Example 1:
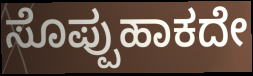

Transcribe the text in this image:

ಸೊಪ್ಪುಹಾಕದೇ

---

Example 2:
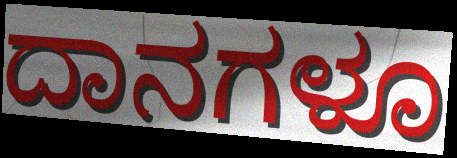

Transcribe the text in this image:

ದಾನಗಳೂ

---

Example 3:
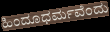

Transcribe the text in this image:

ಹಿಂದೂಧರ್ಮವೆಂದು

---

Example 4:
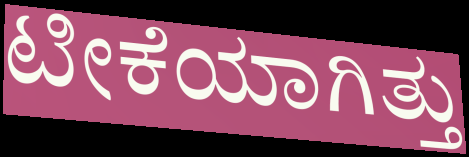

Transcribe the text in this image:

ಟೀಕೆಯಾಗಿತ್ತು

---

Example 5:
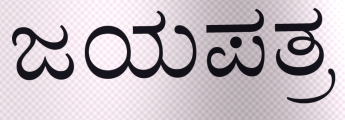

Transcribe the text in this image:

ಜಯಪತ್ರ